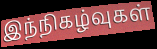
இந்நிகழ்வுகள்